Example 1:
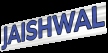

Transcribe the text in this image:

JAISHWAL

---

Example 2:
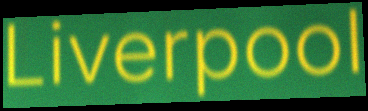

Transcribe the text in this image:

Liverpool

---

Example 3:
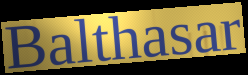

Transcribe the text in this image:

Balthasar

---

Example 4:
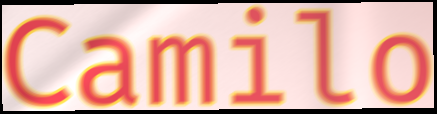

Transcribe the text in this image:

Camilo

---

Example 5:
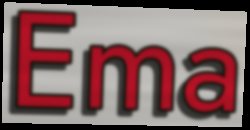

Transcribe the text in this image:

Ema